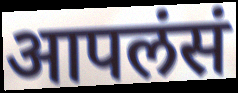
आपलंसं